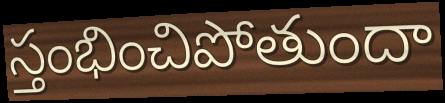
స్తంభించిపోతుందా